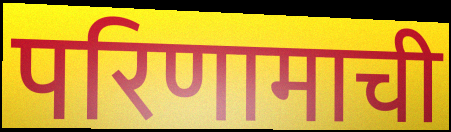
परिणामाची